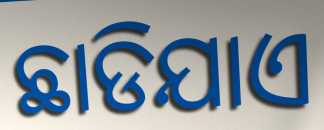
ଛାଡିଯାଏ